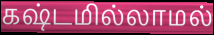
கஷ்டமில்லாமல்